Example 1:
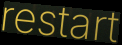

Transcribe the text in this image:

restart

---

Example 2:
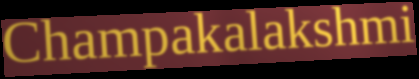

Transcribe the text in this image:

Champakalakshmi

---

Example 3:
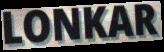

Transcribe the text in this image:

LONKAR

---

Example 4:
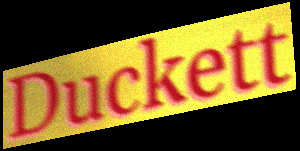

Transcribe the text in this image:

Duckett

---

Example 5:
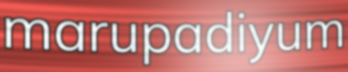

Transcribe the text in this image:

marupadiyum